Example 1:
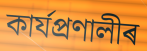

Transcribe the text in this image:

কাৰ্যপ্ৰণালীৰ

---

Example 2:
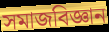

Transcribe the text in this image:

সমাজবিজ্ঞান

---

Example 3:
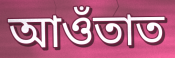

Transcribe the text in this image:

আওঁতাত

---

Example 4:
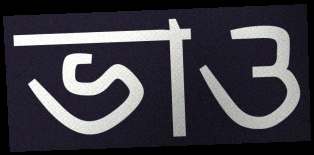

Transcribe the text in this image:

ভাও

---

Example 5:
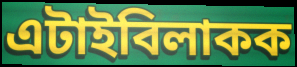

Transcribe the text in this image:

এটাইবিলাকক